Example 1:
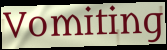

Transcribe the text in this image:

Vomiting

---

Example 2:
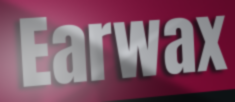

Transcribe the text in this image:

Earwax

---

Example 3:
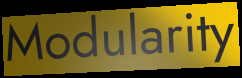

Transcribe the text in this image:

Modularity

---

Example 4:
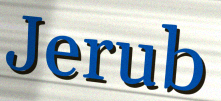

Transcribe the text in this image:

Jerub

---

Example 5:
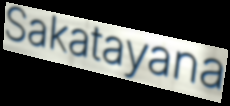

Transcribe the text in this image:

Sakatayana